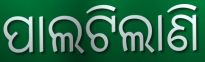
ପାଲଟିଲାଣି